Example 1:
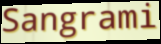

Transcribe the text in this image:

Sangrami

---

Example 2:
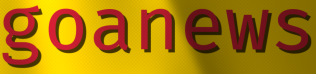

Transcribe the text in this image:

goanews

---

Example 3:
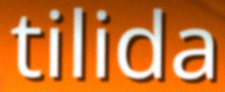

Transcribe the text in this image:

tilida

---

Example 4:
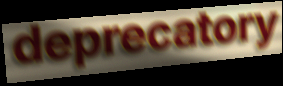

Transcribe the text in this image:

deprecatory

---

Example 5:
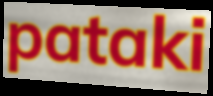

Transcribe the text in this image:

pataki